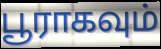
பூராகவும்